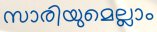
സാരിയുമെല്ലാം